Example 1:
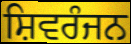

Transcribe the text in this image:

ਸ਼ਿਵਰੰਜਨ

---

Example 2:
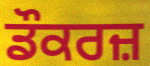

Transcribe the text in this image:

ਡੌਕਰਜ਼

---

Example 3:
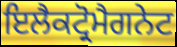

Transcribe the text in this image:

ਇਲੈਕਟ੍ਰੋਮੈਗਨੇਟ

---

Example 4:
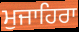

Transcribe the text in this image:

ਮੁਜਾਹਿਰਾ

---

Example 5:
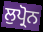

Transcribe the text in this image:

ਲੁਪ੍ਰੋਨ